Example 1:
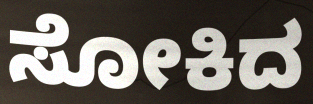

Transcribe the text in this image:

ಸೋಕಿದ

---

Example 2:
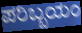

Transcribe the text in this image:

ಪರಿಬ್ಬಯಂ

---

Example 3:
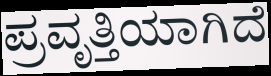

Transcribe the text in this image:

ಪ್ರವೃತ್ತಿಯಾಗಿದೆ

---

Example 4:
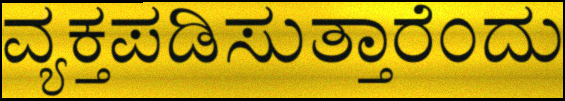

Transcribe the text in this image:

ವ್ಯಕ್ತಪಡಿಸುತ್ತಾರೆಂದು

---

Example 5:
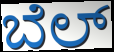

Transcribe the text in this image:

ಬೆಲ್